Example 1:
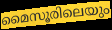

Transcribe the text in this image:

മൈസൂരിലെയും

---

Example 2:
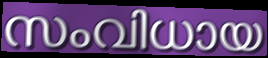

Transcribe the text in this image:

സംവിധായ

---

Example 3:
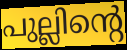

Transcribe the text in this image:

പുല്ലിന്റെ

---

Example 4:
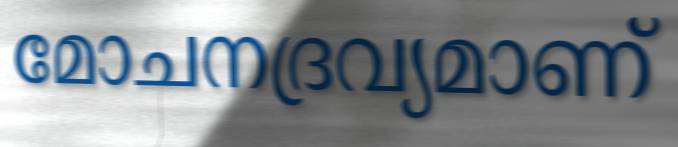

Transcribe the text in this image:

മോചനദ്രവ്യമാണ്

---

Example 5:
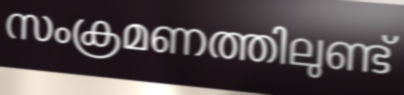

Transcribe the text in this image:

സംക്രമണത്തിലുണ്ട്